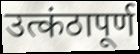
उत्कंठापूर्ण